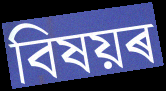
বিষয়ৰ